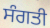
ਸੰਗਤੀ